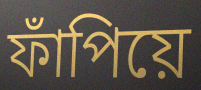
ফাঁপিয়ে